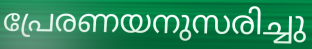
പ്രേരണയനുസരിച്ചു